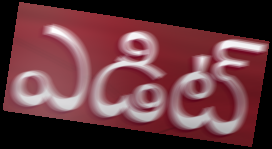
ఎడిట్